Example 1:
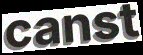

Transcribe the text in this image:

canst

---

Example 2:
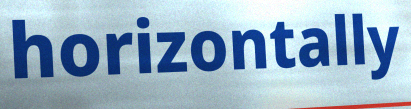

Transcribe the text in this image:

horizontally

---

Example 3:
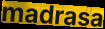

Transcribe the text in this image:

madrasa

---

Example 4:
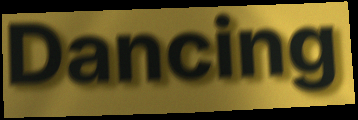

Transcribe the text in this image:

Dancing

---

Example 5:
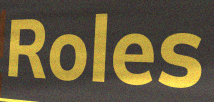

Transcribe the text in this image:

Roles